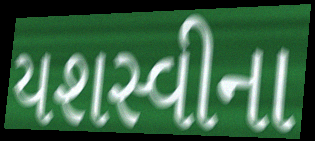
યશસ્વીના